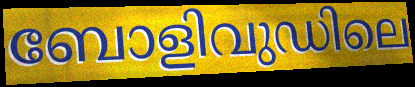
ബോളിവുഡിലെ